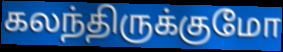
கலந்திருக்குமோ